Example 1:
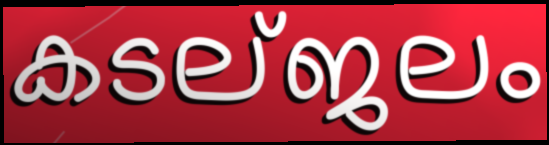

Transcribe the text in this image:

കടല്ജലം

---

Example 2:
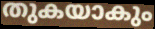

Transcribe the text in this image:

തുകയാകും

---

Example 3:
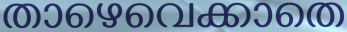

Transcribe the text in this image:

താഴെവെക്കാതെ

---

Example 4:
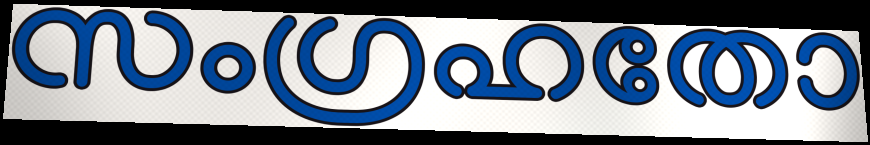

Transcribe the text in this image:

സംഗ്രഹതോ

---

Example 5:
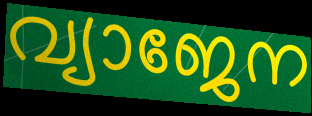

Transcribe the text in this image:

വ്യാജേന